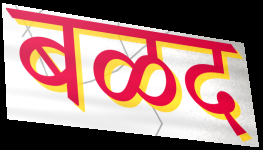
बळद